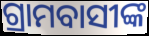
ଗ୍ରାମବାସୀଙ୍କ